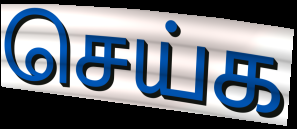
செய்க